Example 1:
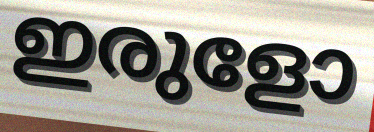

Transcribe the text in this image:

ഇരുളോ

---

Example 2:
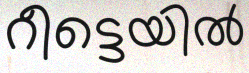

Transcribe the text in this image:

റീട്ടെയിൽ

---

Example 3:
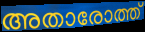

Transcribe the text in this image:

അതാരോത്ത്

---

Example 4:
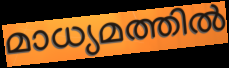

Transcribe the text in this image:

മാധ്യമത്തിൽ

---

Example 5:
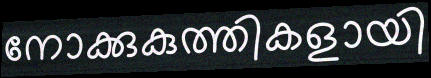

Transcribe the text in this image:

നോക്കുകുത്തികളായി